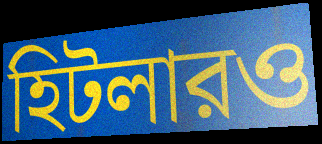
হিটলারও